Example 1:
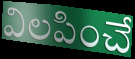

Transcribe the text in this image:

విలపించే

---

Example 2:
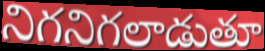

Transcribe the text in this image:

నిగనిగలాడుతూ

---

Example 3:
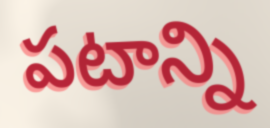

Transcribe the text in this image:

పటాన్ని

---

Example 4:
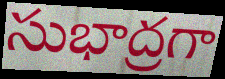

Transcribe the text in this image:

సుభాద్రగా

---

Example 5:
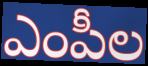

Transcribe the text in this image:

ఎంపీల